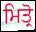
ਮਿਤ੍ਰੋ